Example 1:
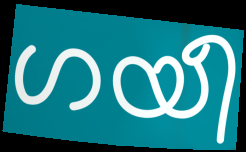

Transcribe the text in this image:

ഗയീ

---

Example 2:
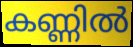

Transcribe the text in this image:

കണ്ണിൽ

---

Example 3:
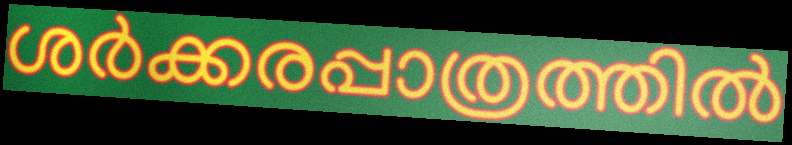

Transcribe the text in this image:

ശർക്കരപ്പാത്രത്തിൽ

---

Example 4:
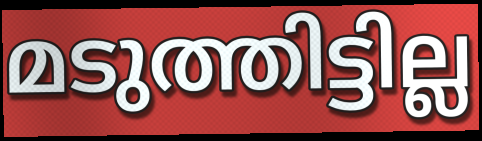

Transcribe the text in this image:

മടുത്തിട്ടില്ല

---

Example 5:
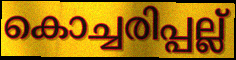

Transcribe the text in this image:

കൊച്ചരിപ്പല്ല്